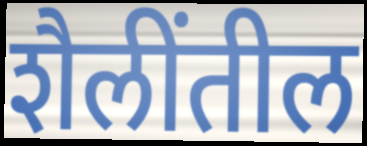
शैलींतील